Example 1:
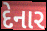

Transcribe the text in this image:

દેનાર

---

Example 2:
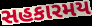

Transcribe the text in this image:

સહકારમય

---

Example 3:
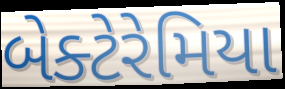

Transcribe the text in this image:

બેક્ટેરેમિયા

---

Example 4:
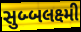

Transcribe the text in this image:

સુબ્બલક્ષ્મી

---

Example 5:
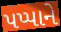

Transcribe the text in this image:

પપ્પાને